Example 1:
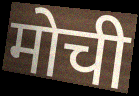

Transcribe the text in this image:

मोची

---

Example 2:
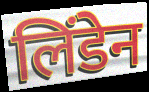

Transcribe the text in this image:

लिंडेन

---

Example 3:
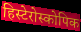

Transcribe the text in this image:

हिस्टेरोस्कोपिक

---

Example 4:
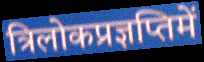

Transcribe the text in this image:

त्रिलोकप्रज्ञप्तिमें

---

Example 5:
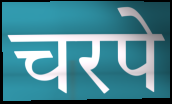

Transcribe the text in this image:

चरपे